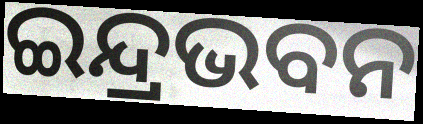
ଇନ୍ଦ୍ରଭବନ